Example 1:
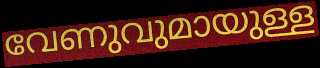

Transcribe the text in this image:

വേണുവുമായുള്ള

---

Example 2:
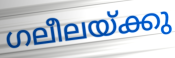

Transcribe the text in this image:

ഗലീലയ്ക്കു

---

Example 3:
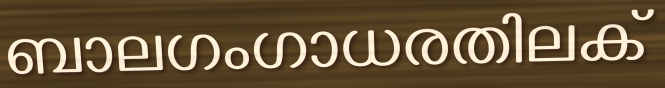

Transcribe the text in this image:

ബാലഗംഗാധരതിലക്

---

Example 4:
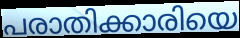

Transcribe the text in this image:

പരാതിക്കാരിയെ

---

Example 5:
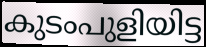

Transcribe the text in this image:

കുടംപുളിയിട്ട